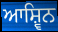
ਆਸ਼੍ਵਿਨ